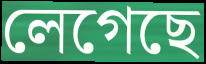
লেগেছে